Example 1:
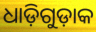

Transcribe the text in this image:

ଧାଡ଼ିଗୁଡ଼ାକ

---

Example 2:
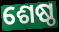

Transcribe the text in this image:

ଶେଷ୍ଠ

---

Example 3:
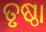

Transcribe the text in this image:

ତୃଷ୍ଠା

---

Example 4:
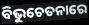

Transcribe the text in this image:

ବିଭୁଚେତନାରେ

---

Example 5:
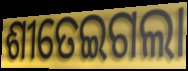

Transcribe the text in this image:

ଶୀତେଇଗଲା